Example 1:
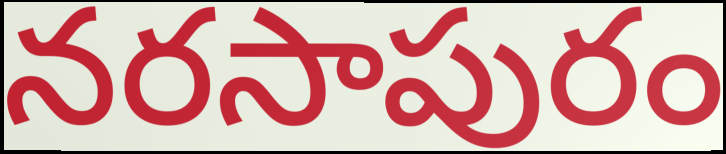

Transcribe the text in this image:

నరసాపురం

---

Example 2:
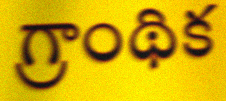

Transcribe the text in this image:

గ్రాంథిక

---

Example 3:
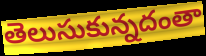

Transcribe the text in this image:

తెలుసుకున్నదంతా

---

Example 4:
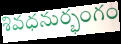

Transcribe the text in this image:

శివధనుర్భంగం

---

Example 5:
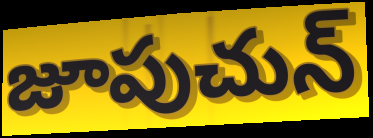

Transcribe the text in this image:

జూపుచున్